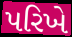
પરિખે